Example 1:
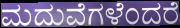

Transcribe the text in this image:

ಮದುವೆಗಳೆಂದರೆ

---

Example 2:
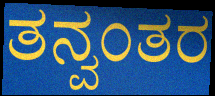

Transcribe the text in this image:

ತನ್ವಂತರ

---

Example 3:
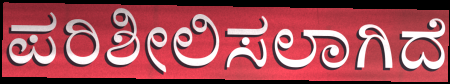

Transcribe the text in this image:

ಪರಿಶೀಲಿಸಲಾಗಿದೆ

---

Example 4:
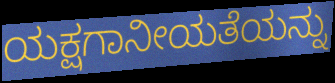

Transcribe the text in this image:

ಯಕ್ಷಗಾನೀಯತೆಯನ್ನು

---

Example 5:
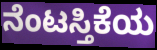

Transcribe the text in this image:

ನೆಂಟಸ್ತಿಕೆಯ